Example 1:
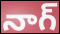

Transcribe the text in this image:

నాగ్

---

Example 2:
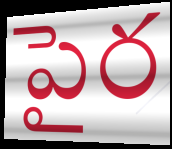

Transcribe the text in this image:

పైర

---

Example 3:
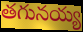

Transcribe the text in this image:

తగునయ్య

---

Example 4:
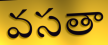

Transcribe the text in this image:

వసతా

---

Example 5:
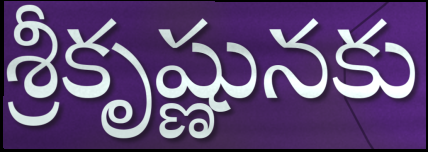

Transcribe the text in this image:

శ్రీకృష్ణునకు